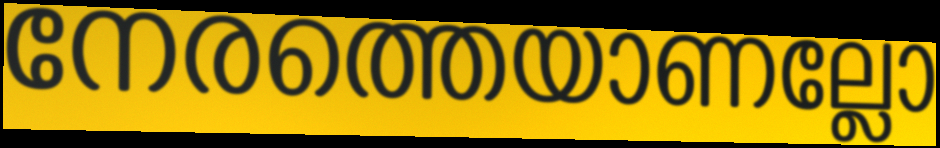
നേരത്തെയാണല്ലോ